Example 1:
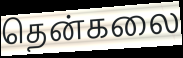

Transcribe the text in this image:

தென்கலை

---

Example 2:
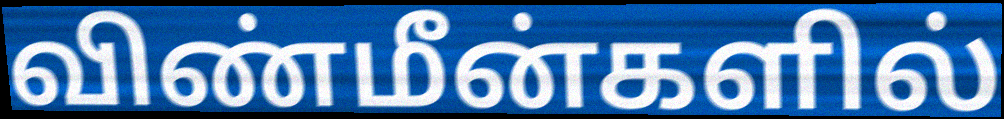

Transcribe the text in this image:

விண்மீன்களில்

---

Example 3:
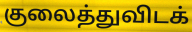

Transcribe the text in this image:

குலைத்துவிடக்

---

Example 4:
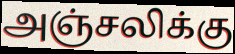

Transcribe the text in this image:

அஞ்சலிக்கு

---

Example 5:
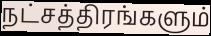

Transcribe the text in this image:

நட்சத்திரங்களும்